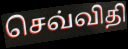
செவ்விதி